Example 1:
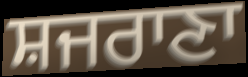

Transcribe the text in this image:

ਸ਼ਜਰਾਣਾ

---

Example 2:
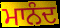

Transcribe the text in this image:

ਮਾਨੰਦ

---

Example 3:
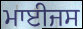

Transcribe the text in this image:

ਮਾਈਜਸ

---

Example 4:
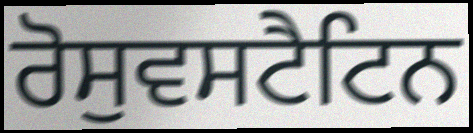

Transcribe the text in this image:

ਰੋਸੁਵਸਟੈਟਿਨ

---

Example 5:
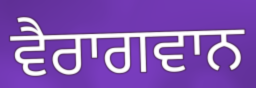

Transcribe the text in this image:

ਵੈਰਾਗਵਾਨ